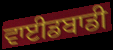
ਵਾਈਡਬਾਡੀ